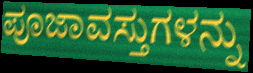
ಪೂಜಾವಸ್ತುಗಳನ್ನು